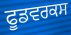
ਫੂਡਵਰਕਸ